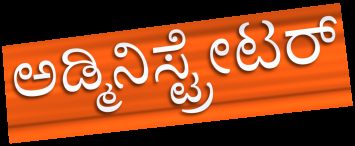
ಅಡ್ಮಿನಿಸ್ಟ್ರೇಟರ್